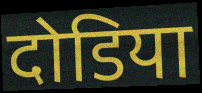
दोडिया